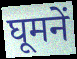
घूमनें